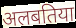
अलबतिया